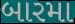
બારમા